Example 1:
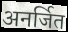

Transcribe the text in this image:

अनर्जित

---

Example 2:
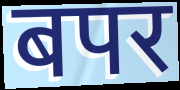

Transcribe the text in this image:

बपर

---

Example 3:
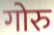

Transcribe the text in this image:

गोरु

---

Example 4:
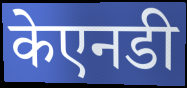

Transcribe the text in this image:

केएनडी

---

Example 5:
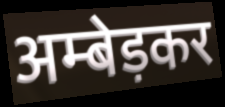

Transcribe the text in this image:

अम्बेड़कर